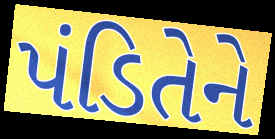
પંડિતેને